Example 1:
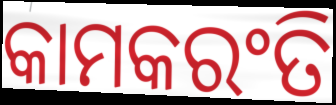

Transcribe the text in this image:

କାମକରଂତି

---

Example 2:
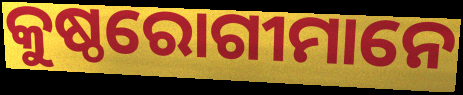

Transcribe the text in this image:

କୁଷ୍ଠରୋଗୀମାନେ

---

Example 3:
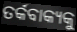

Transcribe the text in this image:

ତର୍କବାକ୍ୟକୁ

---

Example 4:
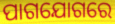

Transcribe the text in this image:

ପାଗଯୋଗରେ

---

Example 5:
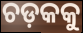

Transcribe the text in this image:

ଚଡ଼କକୁ